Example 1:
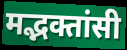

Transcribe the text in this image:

मद्भक्तांसी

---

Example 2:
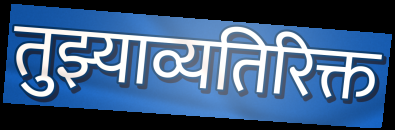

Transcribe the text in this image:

तुझ्याव्यतिरिक्त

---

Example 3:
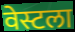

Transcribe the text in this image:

वेस्टला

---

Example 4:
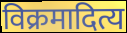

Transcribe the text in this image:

विक्रमादित्य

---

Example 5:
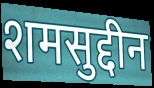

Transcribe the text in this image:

शमसुद्दीन